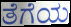
ತೆಗೆಯ